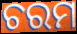
ଚରମ